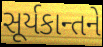
સૂર્યકાન્તને